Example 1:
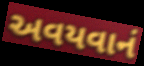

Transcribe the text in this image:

અવયવાનં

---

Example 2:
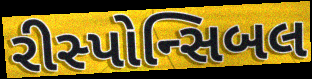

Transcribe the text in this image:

રીસ્પોન્સિબલ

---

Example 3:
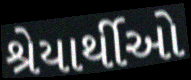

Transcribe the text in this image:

શ્રેયાર્થીઓ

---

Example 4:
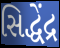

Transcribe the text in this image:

સિદ્ધેંદ્ર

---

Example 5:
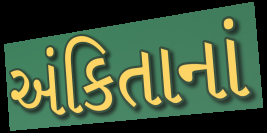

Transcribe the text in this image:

અંકિતાનાં